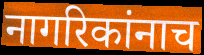
नागरिकांनाच